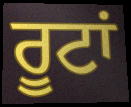
ਰੂਟਾਂ